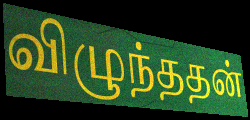
விழுந்ததன்